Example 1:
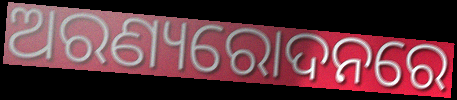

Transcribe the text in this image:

ଅରଣ୍ୟରୋଦନରେ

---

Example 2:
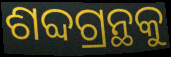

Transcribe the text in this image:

ଶବ୍ଦଗ୍ରନ୍ଥକୁ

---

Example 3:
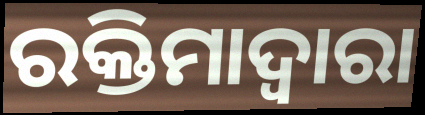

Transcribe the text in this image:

ରକ୍ତିମାଦ୍ୱାରା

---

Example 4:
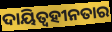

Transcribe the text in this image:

ଦାୟିତ୍ଵହୀନତାର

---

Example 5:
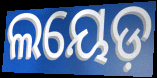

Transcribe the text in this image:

ଲୟେଡ଼